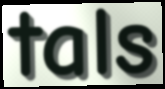
tals